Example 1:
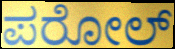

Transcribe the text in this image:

ಪರೋಲ್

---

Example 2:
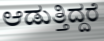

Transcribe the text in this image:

ಆಡುತ್ತಿದ್ದರೆ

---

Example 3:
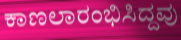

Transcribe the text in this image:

ಕಾಣಲಾರಂಭಿಸಿದ್ದವು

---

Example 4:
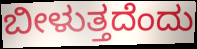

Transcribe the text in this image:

ಬೀಳುತ್ತದೆಂದು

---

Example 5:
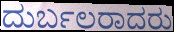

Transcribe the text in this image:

ದುರ್ಬಲರಾದರು